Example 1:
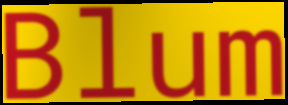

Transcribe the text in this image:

Blum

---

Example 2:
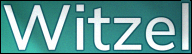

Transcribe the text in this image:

Witzel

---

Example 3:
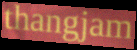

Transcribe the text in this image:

thangjam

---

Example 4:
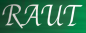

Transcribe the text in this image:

RAUT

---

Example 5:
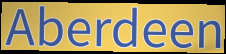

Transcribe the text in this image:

Aberdeen